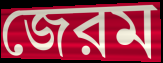
জেরম